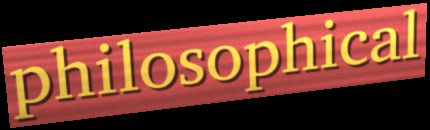
philosophical